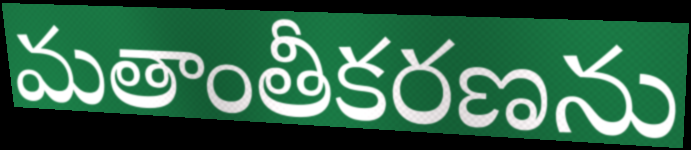
మతాంతీకరణను